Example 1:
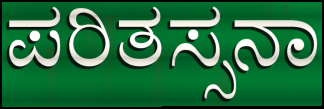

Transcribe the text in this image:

ಪರಿತಸ್ಸನಾ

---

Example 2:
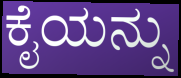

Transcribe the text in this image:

ಕೈಯನ್ನು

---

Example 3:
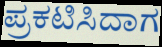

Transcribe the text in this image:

ಪ್ರಕಟಿಸಿದಾಗ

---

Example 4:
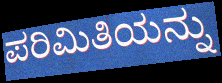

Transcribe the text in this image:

ಪರಿಮಿತಿಯನ್ನು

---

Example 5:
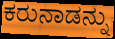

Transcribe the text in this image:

ಕರುನಾಡನ್ನು